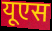
यूएस